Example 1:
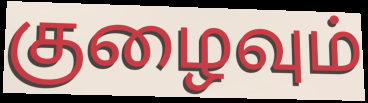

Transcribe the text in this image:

குழைவும்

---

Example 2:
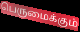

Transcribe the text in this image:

பெருமைக்கும்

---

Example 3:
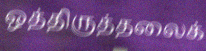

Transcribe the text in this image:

ஒத்திருத்தலைக்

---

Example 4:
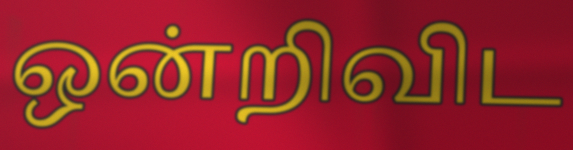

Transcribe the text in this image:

ஒன்றிவிட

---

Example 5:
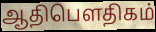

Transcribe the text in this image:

ஆதிபௌதிகம்